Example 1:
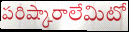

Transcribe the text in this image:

పరిష్కారాలేమిటో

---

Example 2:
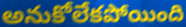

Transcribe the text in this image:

అనుకోలేకపోయింది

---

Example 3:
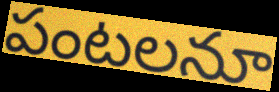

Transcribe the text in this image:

పంటలనూ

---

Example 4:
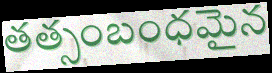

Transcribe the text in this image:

తత్సంబంధమైన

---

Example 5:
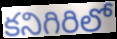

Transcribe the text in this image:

కనిగిరిలో